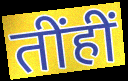
तींहीं